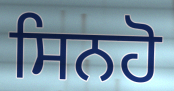
ਸਿਨਹੋ